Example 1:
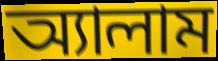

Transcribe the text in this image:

অ্যালাম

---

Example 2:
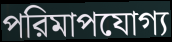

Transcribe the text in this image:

পরিমাপযোগ্য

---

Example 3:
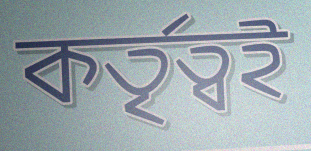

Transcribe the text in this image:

কর্তৃত্বই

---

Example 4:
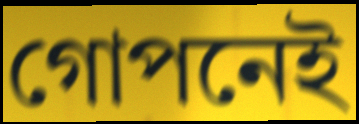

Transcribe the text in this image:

গোপনেই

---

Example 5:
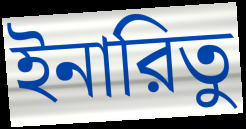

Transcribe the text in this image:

ইনারিতু